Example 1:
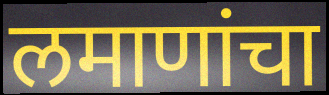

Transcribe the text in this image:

लमाणांचा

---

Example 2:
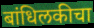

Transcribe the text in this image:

बांधिलकीचा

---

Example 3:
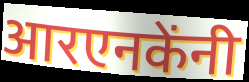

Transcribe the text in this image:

आरएनकेंनी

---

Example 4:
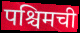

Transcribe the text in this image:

पश्चिमची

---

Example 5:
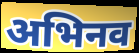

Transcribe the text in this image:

अभिनव